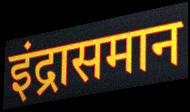
इंद्रासमान